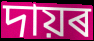
দায়ৰ